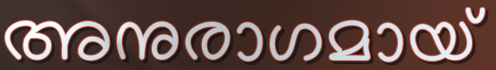
അനുരാഗമായ്